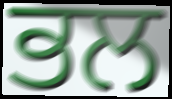
ਭਲ